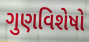
ગુણવિશેષો